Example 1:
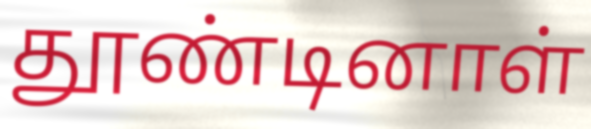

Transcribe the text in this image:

தூண்டினாள்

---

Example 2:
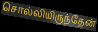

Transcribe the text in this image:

சொல்லியிருந்தேன்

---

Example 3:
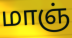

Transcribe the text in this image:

மாஞ்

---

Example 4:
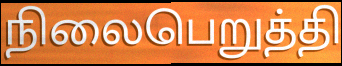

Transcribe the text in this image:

நிலைபெறுத்தி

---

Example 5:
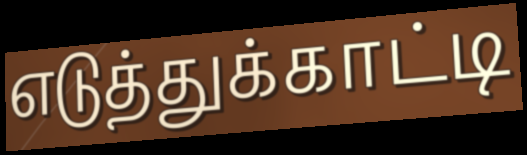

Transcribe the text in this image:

எடுத்துக்காட்டி